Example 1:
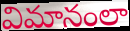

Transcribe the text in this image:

విమానంలా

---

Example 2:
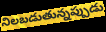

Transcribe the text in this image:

నిలబడుతున్నప్పుడు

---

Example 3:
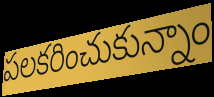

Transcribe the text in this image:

పలకరించుకున్నాం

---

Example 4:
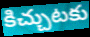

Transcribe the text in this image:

కిచ్చుటకు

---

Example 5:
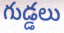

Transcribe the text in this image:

గుడ్డలు